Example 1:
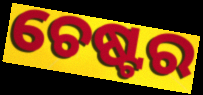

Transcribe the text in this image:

ଚେଷ୍ଟର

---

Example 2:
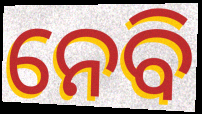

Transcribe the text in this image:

ନେବି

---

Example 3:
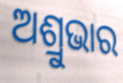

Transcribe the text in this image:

ଅଶ୍ରୁଭାର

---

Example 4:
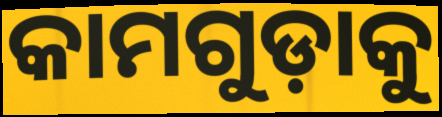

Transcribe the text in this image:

କାମଗୁଡ଼ାକୁ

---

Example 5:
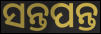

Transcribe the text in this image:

ସନ୍ତପନ୍ତ